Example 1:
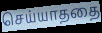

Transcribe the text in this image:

செய்யாததை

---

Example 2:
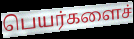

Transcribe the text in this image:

பெயர்களைச்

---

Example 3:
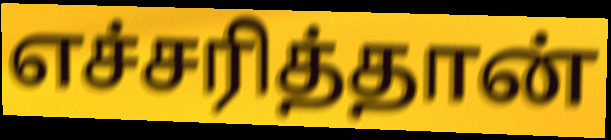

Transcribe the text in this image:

எச்சரித்தான்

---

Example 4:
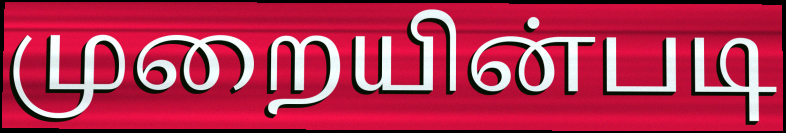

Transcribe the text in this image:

முறையின்படி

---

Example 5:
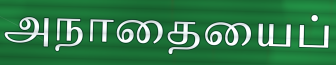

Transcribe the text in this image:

அநாதையைப்